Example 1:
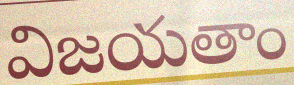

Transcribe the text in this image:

విజయతాం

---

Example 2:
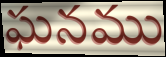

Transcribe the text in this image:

ఘనము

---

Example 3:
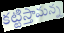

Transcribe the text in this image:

కట్టిస్తామన్న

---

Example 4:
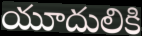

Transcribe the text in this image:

యూదులికి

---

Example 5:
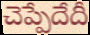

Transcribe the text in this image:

చెప్పేదేదీ